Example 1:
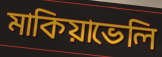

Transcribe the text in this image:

মাকিয়াভেলি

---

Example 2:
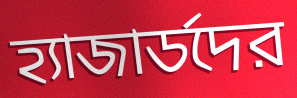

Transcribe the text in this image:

হ্যাজার্ডদের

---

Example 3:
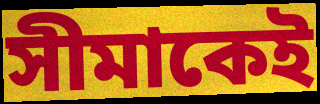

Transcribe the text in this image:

সীমাকেই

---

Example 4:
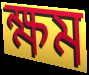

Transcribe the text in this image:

ক্ষম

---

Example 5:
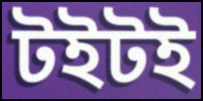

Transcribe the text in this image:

টইটই